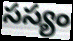
సస్యం